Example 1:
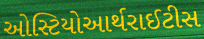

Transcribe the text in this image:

ઓસ્ટિયોઆર્થરાઈટીસ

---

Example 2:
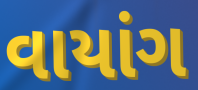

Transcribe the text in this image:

વાયાંગ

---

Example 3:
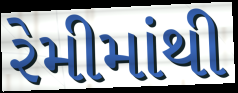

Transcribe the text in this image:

રેમીમાંથી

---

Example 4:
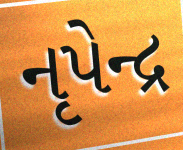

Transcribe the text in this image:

નૃપેન્દ્ર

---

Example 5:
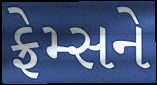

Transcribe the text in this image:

ફ્રેમ્સને